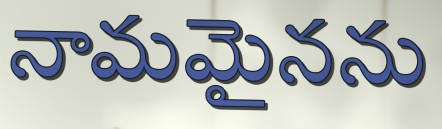
నామమైనను